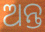
ଅନ୍ତ